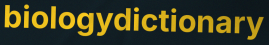
biologydictionary